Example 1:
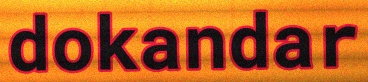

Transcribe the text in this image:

dokandar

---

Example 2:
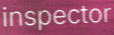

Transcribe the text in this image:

inspector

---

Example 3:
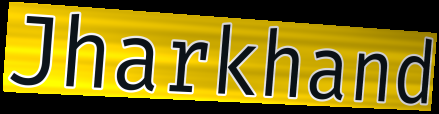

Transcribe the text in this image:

Jharkhand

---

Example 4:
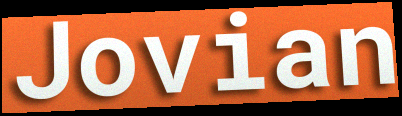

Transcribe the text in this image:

Jovian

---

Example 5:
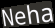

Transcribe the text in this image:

Neha